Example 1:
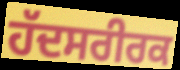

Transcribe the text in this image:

ਹੱਦਸਰੀਰਕ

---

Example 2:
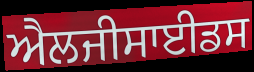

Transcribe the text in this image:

ਐਲਜੀਸਾਈਡਸ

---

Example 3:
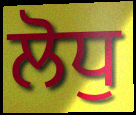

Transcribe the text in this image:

ਲੋਧੁ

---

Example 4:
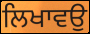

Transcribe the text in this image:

ਲਿਖਾਵਉ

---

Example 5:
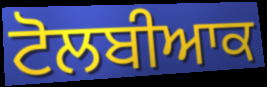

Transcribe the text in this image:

ਟੋਲਬੀਆਕ